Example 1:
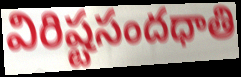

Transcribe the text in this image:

విరిష్టసందధాతి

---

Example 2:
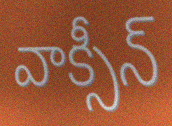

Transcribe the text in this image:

వాక్సీన్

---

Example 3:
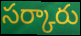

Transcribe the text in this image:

సర్కారు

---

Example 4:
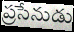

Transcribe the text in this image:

ప్రసేనుడు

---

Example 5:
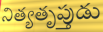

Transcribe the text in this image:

నిత్యతృప్తుడు